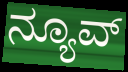
ನ್ಯೂವ್